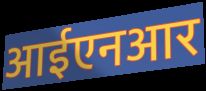
आईएनआर